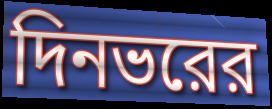
দিনভরের